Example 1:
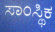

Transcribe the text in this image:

ಸಾಂಸ್ಥಿಕ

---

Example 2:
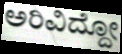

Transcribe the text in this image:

ಅರಿವಿದ್ದೋ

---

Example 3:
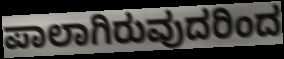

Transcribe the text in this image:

ಪಾಲಾಗಿರುವುದರಿಂದ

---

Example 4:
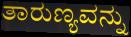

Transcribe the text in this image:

ತಾರುಣ್ಯವನ್ನು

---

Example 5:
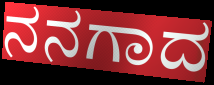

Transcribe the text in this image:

ನನಗಾದ